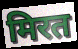
मिरत